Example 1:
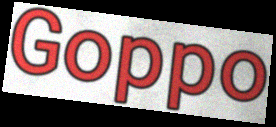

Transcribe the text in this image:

Goppo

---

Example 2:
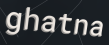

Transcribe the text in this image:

ghatna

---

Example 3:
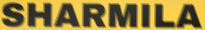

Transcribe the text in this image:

SHARMILA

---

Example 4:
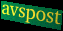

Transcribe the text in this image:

avspost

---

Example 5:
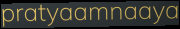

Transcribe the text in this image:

pratyaamnaaya